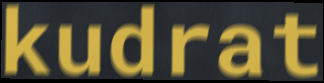
kudrat